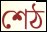
শেঠ